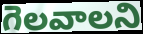
గెలవాలని